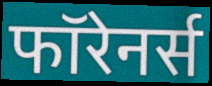
फॉरेनर्स